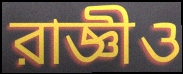
রাজ্ঞীও